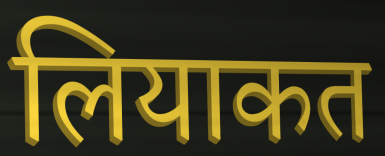
लियाकत